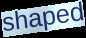
shaped